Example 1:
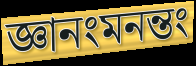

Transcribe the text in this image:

জ্ঞানংমনন্তং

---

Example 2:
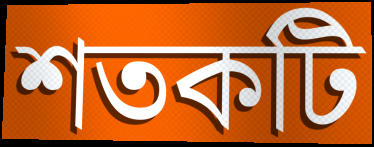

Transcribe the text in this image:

শতকটি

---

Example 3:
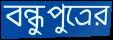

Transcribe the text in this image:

বন্ধুপুত্রের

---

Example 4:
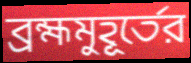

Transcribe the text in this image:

ব্রহ্মমুহূর্তের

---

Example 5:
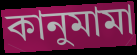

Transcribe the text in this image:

কানুমামা